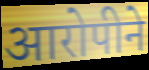
आरोपीने